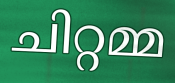
ചിറ്റമ്മ